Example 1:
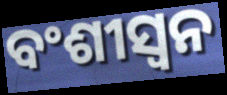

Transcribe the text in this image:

ବଂଶୀସ୍ୱନ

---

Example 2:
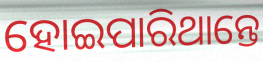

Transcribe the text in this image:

ହୋଇପାରିଥାନ୍ତେ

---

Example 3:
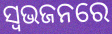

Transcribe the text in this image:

ସ୍ଵଭଜନରେ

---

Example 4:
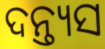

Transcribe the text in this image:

ଦନ୍ତ୍ୟସ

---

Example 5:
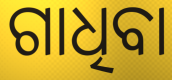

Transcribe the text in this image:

ଗାଧିବା